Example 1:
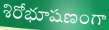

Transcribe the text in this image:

శిరోభూషణంగా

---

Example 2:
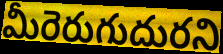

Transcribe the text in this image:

మీరెరుగుదురని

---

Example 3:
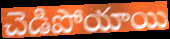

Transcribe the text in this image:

చెడిపోయాయి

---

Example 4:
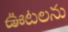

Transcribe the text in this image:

ఊటలను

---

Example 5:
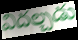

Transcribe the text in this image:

విదల్చడు